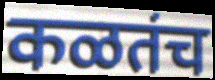
कळतंच